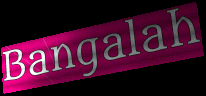
Bangalah